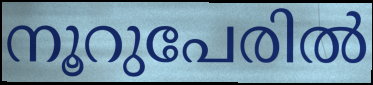
നൂറുപേരിൽ